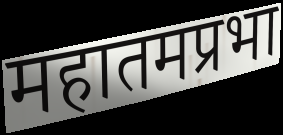
महातमप्रभा